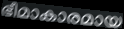
ഭീമാകാരമായ